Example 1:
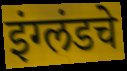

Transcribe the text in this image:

इंग्लंडचे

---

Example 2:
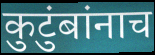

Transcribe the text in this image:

कुटुंबांनाच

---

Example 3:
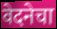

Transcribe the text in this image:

वेदनेचा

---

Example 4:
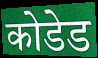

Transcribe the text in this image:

कोडेड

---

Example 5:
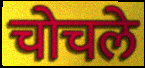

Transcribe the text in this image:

चोचले